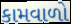
કામવાળો